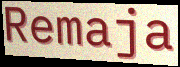
Remaja